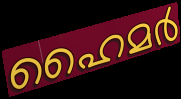
ഹൈമർ